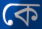
কে